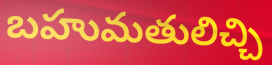
బహుమతులిచ్చి